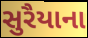
સુરૈયાના